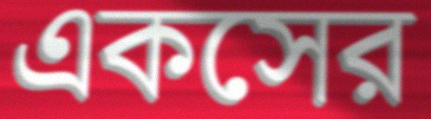
একসের